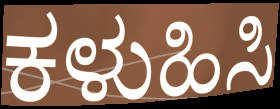
ಕಳುಹಿಸಿ